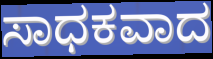
ಸಾಧಕವಾದ